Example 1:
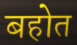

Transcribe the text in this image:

बहोत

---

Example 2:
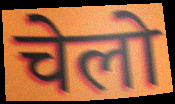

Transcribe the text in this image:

चेलो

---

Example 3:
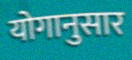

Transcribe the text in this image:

योगानुसार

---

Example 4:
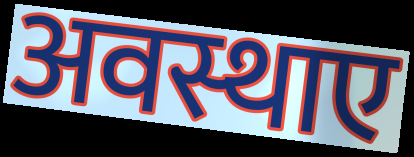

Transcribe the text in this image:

अवस्थाए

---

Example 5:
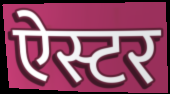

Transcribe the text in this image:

ऐस्टर